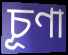
চূণা